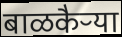
बाळकैऱ्या